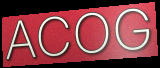
ACOG